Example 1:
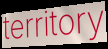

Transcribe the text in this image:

territory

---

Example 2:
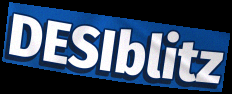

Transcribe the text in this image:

DESIblitz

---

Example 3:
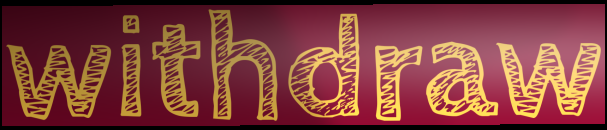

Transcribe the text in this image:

withdraw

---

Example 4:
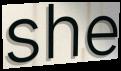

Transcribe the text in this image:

she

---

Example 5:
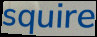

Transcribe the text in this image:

squire